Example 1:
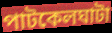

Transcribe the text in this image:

পাটকেলঘাটা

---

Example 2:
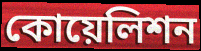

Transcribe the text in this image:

কোয়েলিশন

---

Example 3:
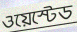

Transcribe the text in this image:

ওয়েস্টেড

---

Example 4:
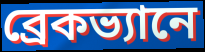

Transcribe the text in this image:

ব্রেকভ্যানে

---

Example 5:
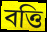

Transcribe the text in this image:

বত্তি